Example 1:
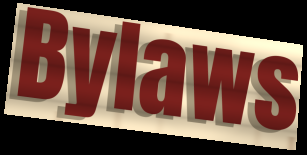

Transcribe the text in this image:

Bylaws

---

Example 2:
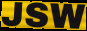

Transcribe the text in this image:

JSW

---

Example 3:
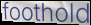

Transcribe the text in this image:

foothold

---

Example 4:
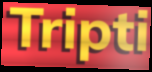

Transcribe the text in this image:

Tripti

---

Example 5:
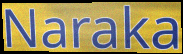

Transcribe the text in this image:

Naraka